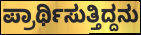
ಪ್ರಾರ್ಥಿಸುತ್ತಿದ್ದನು